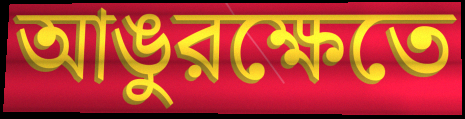
আঙুরক্ষেতে